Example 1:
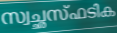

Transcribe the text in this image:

സ്വച്ഛസ്ഫടിക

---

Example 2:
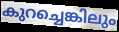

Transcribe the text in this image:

കുറച്ചെങ്കിലും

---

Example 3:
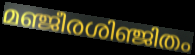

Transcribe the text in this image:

മഞ്ജീരശിഞ്ജിതം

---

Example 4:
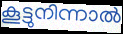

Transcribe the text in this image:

കൂട്ടുനിന്നാൽ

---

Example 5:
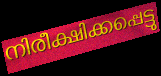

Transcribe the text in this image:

നിരീക്ഷിക്കപ്പെട്ടു